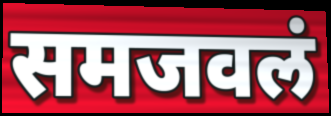
समजवलं